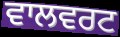
ਵਾਲਵਰਟ